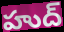
హుద్